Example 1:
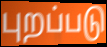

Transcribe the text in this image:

புறப்படு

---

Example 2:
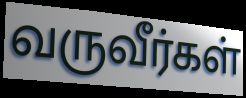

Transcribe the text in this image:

வருவீர்கள்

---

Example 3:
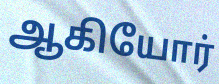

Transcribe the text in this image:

ஆகியோர்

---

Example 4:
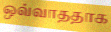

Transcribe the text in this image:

ஒவ்வாததாக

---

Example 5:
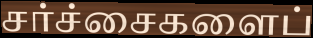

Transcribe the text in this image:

சர்ச்சைகளைப்